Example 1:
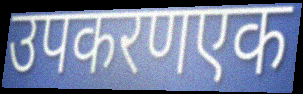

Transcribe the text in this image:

उपकरणएक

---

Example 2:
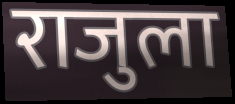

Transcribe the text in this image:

राजुला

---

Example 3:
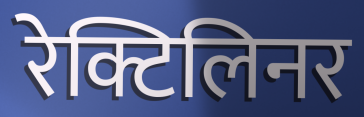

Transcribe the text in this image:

रेक्टिलिनर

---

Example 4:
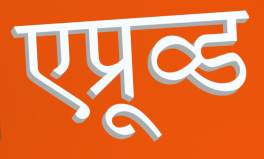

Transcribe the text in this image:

एप्रूव्ड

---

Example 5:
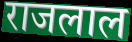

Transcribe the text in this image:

राजलाल